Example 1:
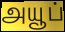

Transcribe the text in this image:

அயூப்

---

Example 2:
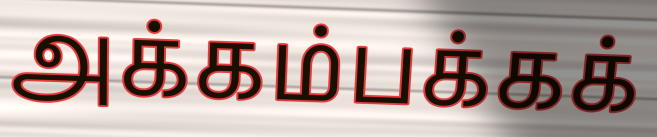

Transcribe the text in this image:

அக்கம்பக்கக்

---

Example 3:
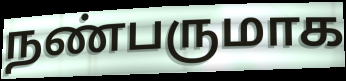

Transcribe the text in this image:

நண்பருமாக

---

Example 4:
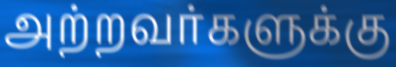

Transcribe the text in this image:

அற்றவர்களுக்கு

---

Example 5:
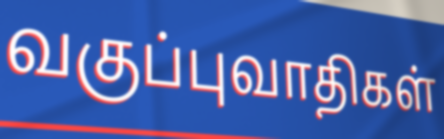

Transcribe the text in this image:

வகுப்புவாதிகள்